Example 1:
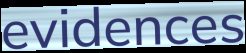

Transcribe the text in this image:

evidences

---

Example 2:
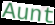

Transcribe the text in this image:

Aunt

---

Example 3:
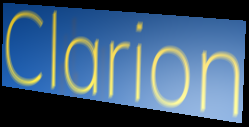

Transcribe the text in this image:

Clarion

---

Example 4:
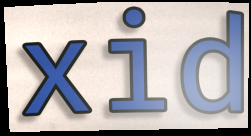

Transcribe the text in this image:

xid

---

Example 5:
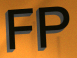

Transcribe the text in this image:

FP